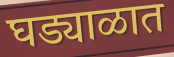
घड्याळात